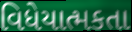
વિધેયાત્મકતા